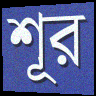
শূর